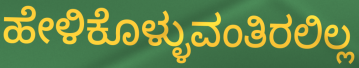
ಹೇಳಿಕೊಳ್ಳುವಂತಿರಲಿಲ್ಲ